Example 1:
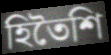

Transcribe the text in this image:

হিতৈশি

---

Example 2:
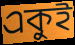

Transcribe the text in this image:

একুই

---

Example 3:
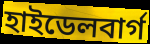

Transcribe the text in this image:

হাইডেলবার্গ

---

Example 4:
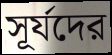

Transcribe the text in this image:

সূর্যদের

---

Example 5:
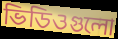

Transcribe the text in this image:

ভিডিওগুলো